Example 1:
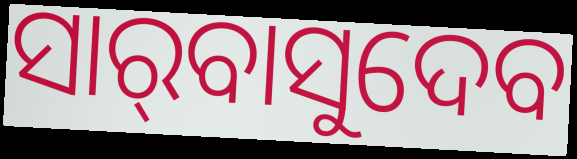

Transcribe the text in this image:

ସାର୍‌ବାସୁଦେବ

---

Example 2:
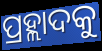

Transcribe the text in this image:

ପ୍ରହ୍ଲାଦକୁ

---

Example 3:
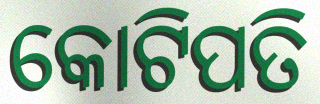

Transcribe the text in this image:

କୋଟିପତି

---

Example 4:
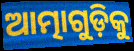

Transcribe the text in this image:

ଆତ୍ମାଗୁଡ଼ିକୁ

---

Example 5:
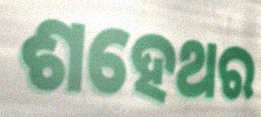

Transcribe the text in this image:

ଶହେଥର